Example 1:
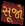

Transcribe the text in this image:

સૂજો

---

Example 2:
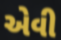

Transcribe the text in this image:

એવી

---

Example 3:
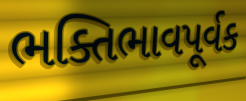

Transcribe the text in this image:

ભક્તિભાવપૂર્વક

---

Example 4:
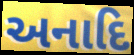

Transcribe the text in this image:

અનાદિ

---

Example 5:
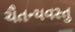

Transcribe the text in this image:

ચૈતન્યવસ્તુ